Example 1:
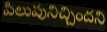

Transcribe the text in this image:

పిలుపునిచ్చిందని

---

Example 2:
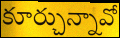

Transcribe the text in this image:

కూర్చున్నావో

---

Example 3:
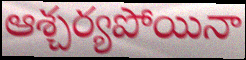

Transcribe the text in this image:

ఆశ్చర్యపోయినా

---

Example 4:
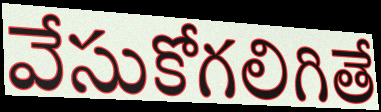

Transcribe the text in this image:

వేసుకోగలిగితే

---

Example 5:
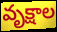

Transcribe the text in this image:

వృక్షాల